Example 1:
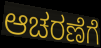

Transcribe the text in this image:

ಆಚರಣೆಗೆ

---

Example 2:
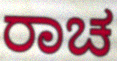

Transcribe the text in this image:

ರಾಚ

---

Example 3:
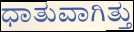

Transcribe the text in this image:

ಧಾತುವಾಗಿತ್ತು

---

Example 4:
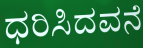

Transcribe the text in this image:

ಧರಿಸಿದವನೆ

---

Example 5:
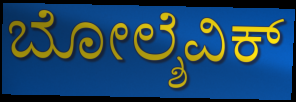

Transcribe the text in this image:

ಬೋಲ್ಶೆವಿಕ್